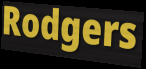
Rodgers